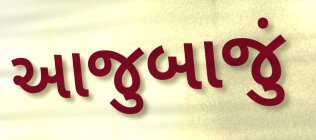
આજુબાજું